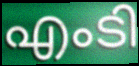
എംടി